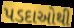
પડદાઓથી